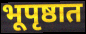
भूपृष्ठात